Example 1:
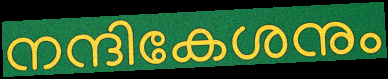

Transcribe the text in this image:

നന്ദികേശനും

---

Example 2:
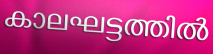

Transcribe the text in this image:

കാലഘട്ടത്തിൽ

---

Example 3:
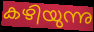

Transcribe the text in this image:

കഴിയുന്നു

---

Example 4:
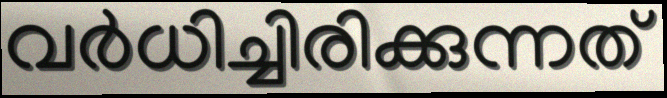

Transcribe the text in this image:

വർധിച്ചിരിക്കുന്നത്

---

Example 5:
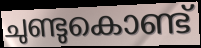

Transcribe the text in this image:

ചുണ്ടുകൊണ്ട്